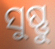
ସୁଷ୍ଣୁ